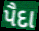
પૈદા